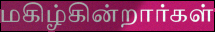
மகிழ்கின்றார்கள்